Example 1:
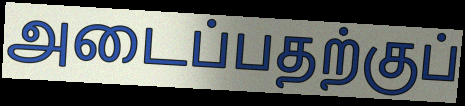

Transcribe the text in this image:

அடைப்பதற்குப்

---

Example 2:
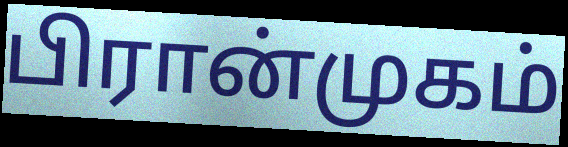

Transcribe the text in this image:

பிரான்முகம்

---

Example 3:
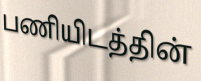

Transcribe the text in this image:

பணியிடத்தின்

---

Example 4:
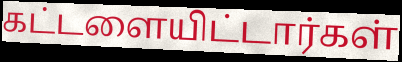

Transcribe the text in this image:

கட்டளையிட்டார்கள்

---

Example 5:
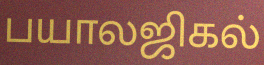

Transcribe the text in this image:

பயாலஜிகல்